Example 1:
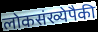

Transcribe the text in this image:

लोकसंख्येपैकी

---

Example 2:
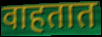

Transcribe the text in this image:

वाहतात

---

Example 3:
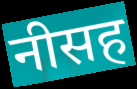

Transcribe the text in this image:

नीसह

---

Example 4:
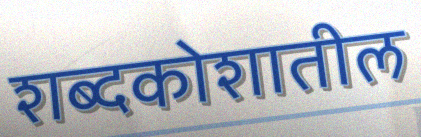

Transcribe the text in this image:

शब्दकोशातील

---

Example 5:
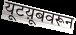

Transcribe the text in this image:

यूटय़ूबवरून